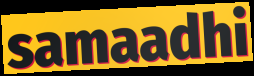
samaadhi